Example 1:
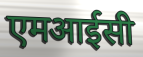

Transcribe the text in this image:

एमआईसी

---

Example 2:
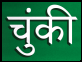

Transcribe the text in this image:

चुंकी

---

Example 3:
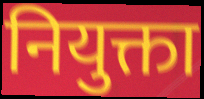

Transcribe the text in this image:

नियुक्ता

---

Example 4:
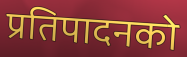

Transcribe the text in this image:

प्रतिपादनको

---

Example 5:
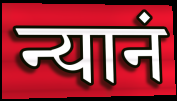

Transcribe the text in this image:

न्यानं